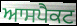
ਆਸਪੈਕਟ